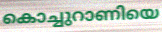
കൊച്ചുറാണിയെ